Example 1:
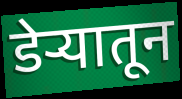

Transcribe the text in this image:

डेऱ्यातून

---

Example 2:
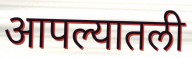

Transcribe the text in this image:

आपल्यातली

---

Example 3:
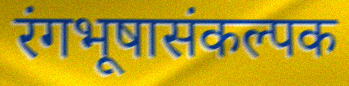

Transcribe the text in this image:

रंगभूषासंकल्पक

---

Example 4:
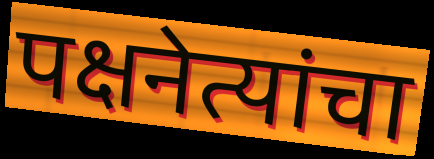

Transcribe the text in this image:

पक्षनेत्यांचा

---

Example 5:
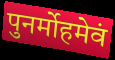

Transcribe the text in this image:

पुनर्मोहमेवं